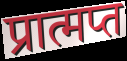
प्रात्मप्त